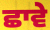
ਛਾਵੇ